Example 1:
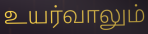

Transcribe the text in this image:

உயர்வாலும்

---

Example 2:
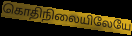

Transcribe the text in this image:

கொதிநிலையிலேயே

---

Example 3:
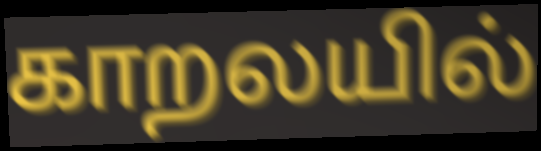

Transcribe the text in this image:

காறலயில்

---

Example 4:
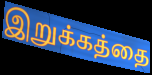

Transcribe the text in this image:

இறுக்கத்தை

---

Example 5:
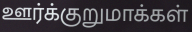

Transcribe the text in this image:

ஊர்க்குறுமாக்கள்